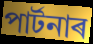
পাৰ্টনাৰ